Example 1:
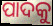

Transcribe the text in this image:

ପାଦକୁ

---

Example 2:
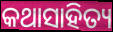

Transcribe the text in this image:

କଥାସାହିତ୍ୟ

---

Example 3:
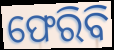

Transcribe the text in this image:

ଫେରିବି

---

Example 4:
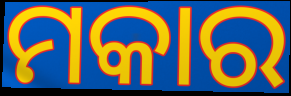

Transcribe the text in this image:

ମକାର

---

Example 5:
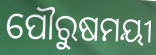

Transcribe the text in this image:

ପୌରୁଷମୟୀ